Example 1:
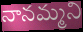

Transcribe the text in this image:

నానమ్మని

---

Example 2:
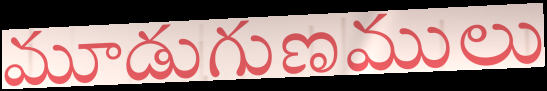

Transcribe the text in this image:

మూడుగుణములు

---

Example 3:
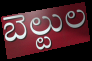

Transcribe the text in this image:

బెల్టుల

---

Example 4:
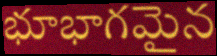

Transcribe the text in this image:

భూభాగమైన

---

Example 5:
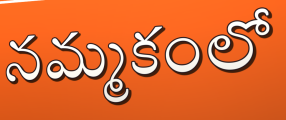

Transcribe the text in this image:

నమ్మకంలో